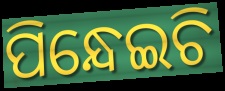
ପିନ୍ଧେଇଚି